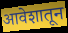
आवेशातून